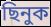
ছিনুক